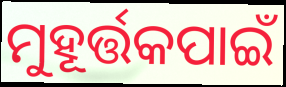
ମୁହୂର୍ତ୍ତକପାଇଁ